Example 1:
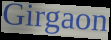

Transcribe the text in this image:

Girgaon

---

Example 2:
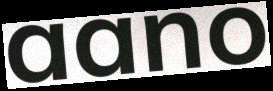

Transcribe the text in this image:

aano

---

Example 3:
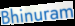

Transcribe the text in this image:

Bhinuram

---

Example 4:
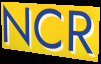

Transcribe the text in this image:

NCR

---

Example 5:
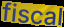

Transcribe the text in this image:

fiscal